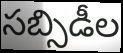
సబ్సిడీల